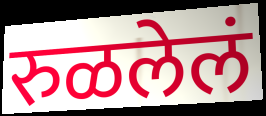
रुळलेलं